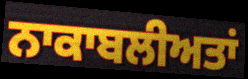
ਨਾਕਾਬਲੀਅਤਾਂ